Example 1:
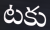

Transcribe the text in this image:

టకు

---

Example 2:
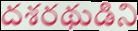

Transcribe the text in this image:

దశరథుడిని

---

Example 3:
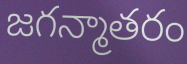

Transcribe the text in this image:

జగన్మాతరం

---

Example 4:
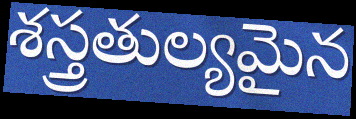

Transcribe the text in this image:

శస్త్రతుల్యమైన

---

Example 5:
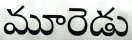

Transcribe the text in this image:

మూరెడు